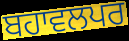
ਬਹਾਵਲਪਰ